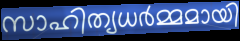
സാഹിത്യധർമ്മമായി